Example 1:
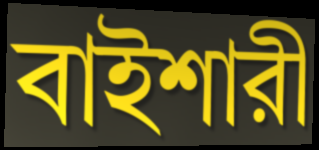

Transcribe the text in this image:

বাইশারী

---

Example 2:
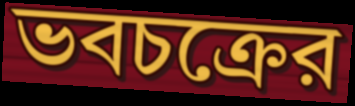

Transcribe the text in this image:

ভবচক্রের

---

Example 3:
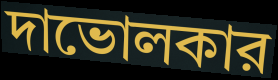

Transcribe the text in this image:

দাভোলকার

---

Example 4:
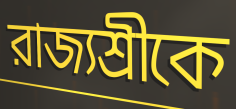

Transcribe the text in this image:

রাজ্যশ্রীকে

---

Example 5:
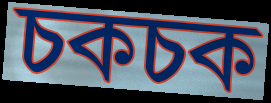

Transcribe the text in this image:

চকচক